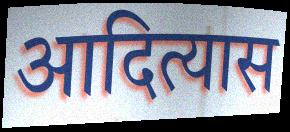
आदित्यास